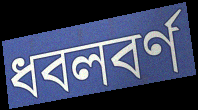
ধবলবর্ণ